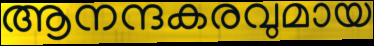
ആനന്ദകരവുമായ